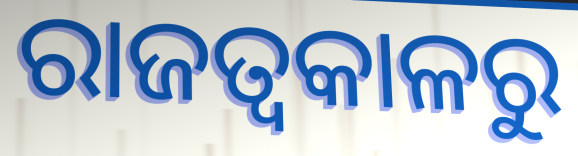
ରାଜତ୍ଵକାଳରୁ